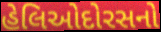
હેલિઓદોરસનો